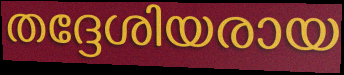
തദ്ദേശിയരായ